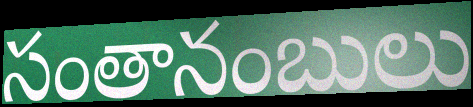
సంతానంబులు